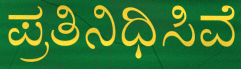
ಪ್ರತಿನಿಧಿಸಿವೆ